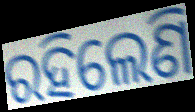
ରହିଲେଣି